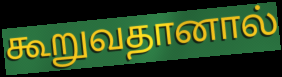
கூறுவதானால்